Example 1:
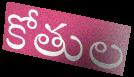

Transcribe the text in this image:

కోతుల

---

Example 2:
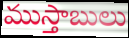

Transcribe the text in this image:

ముస్తాబులు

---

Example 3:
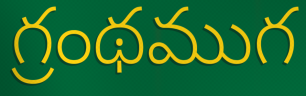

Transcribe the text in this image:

గ్రంథముగ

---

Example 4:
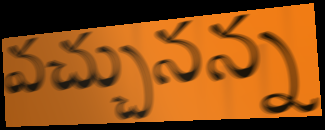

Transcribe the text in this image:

వచ్చునన్న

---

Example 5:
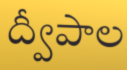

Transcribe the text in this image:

ద్వీపాల